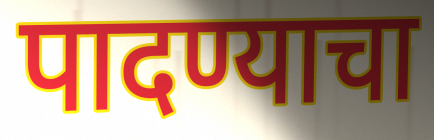
पादण्याचा